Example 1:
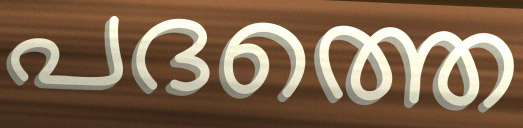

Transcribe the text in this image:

പദത്തെ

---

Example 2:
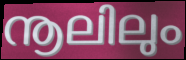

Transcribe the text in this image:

നൂലിലും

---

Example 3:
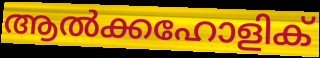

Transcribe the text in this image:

ആൽക്കഹോളിക്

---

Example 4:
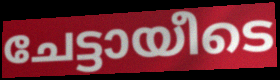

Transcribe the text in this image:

ചേട്ടായീടെ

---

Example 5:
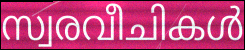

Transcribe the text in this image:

സ്വരവീചികൾ